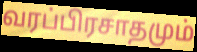
வரப்பிரசாதமும்